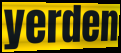
yerden